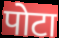
पोटा